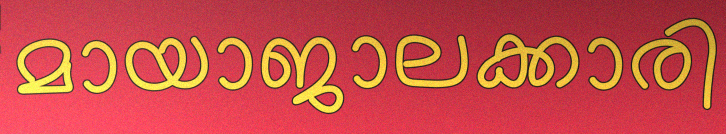
മായാജാലക്കാരി